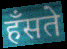
हँसते